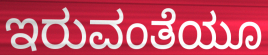
ಇರುವಂತೆಯೂ